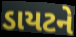
ડાયટને